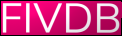
FIVDB